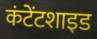
कंटेंटशाइड